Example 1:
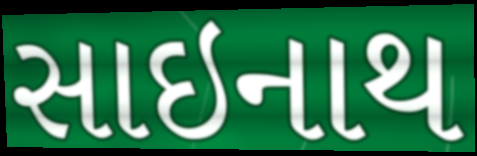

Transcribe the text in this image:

સાઇનાથ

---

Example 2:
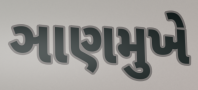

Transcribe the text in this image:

ઞાણમુખે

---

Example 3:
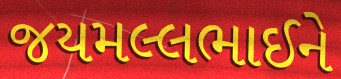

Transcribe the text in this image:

જયમલ્લભાઈને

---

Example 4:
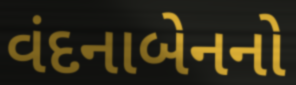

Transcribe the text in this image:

વંદનાબેનનો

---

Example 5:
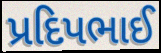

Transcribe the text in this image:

પ્રદિપભાઈ